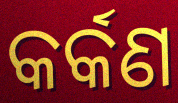
କର୍କଣ